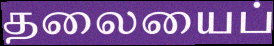
தலையைப்